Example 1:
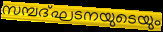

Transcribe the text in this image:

സമ്പദ്ഘടനയുടെയും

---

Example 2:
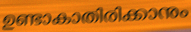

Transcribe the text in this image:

ഉണ്ടാകാതിരിക്കാനും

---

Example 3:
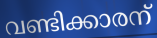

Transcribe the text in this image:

വണ്ടിക്കാരന്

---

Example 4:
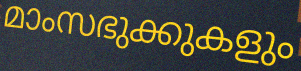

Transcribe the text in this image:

മാംസഭുക്കുകളും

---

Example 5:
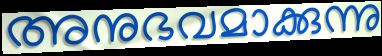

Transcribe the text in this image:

അനുഭവമാക്കുന്നു